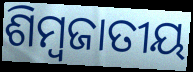
ଶିମ୍ବଜାତୀୟ